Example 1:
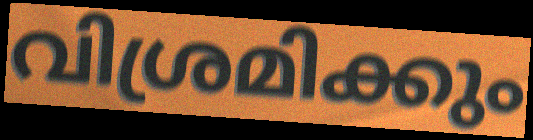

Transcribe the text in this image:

വിശ്രമിക്കും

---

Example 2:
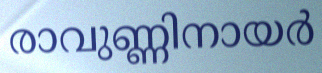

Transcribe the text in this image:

രാവുണ്ണിനായർ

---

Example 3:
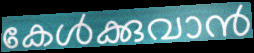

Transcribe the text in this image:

കേൾക്കുവാൻ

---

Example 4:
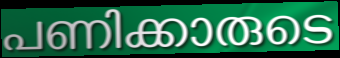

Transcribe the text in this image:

പണിക്കാരുടെ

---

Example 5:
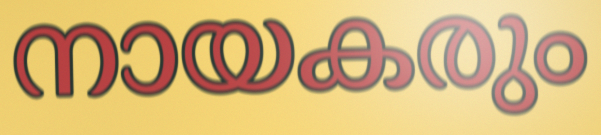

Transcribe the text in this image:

നായകരും